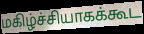
மகிழ்ச்சியாகக்கூட